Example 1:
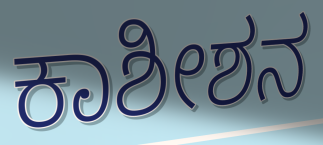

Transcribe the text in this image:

ಕಾಶೀಶನ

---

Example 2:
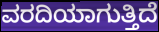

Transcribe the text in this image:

ವರದಿಯಾಗುತ್ತಿದೆ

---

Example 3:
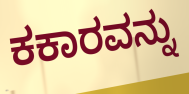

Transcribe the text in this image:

ಕಕಾರವನ್ನು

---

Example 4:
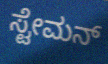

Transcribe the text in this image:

ಸ್ಟೇಮನ್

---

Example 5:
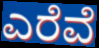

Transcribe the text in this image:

ಎರೆವೆ